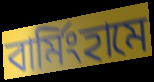
বার্মিংহামে